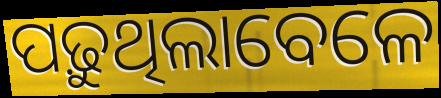
ପଢ଼ୁଥିଲାବେଳେ